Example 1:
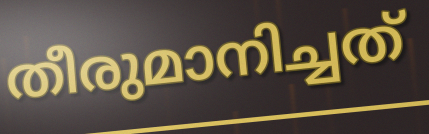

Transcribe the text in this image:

തീരുമാനിച്ചത്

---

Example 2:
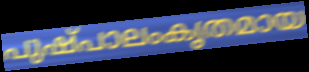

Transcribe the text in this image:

പുഷ്പാലംകൃതമായ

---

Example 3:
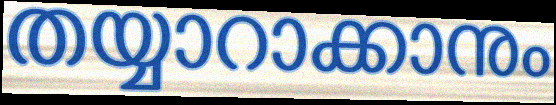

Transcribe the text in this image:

തയ്യാറാക്കാനും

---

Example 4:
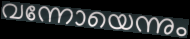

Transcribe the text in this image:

വന്നോയെന്നും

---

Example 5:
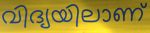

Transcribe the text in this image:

വിദ്യയിലാണ്